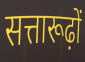
सत्तारूढ़ों